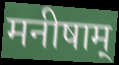
मनीषाम्